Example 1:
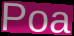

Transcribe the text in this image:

Poa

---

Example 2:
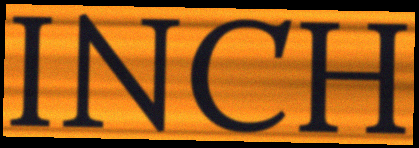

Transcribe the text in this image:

INCH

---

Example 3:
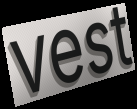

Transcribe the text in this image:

vest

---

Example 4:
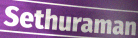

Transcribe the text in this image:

Sethuraman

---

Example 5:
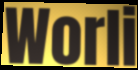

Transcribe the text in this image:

Worli